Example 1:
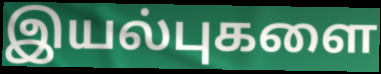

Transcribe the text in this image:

இயல்புகளை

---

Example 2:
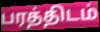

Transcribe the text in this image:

பரத்திடம்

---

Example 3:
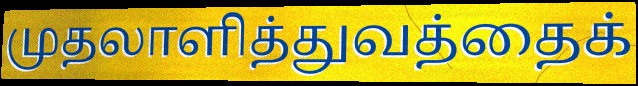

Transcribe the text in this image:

முதலாளித்துவத்தைக்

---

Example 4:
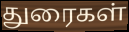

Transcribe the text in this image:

துரைகள்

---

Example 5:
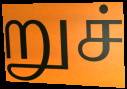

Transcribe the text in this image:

றுச்